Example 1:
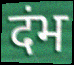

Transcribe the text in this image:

दंभ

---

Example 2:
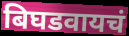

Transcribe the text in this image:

बिघडवायचं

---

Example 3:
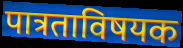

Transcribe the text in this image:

पात्रताविषयक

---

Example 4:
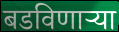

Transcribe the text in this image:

बडविणाऱ्या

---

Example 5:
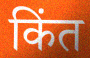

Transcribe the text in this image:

किंत